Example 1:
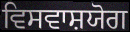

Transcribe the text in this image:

ਵਿਸਵਾਸ਼ਯੋਗ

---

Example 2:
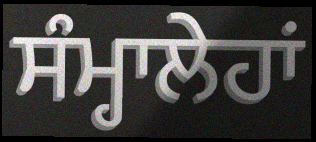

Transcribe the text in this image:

ਸੰਮ੍ਹ੍ਹਾਲੇਹਾਂ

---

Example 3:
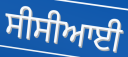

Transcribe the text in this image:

ਸੀਸੀਆਈ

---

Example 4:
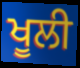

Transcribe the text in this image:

ਖੂਲੀ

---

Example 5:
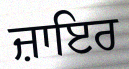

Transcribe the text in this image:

ਜ਼ਾਇਰ